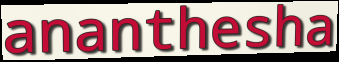
ananthesha